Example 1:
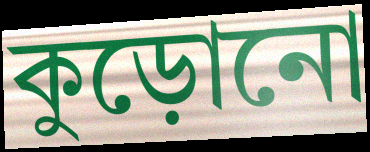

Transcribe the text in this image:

কুড়োনো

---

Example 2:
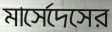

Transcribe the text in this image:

মার্সেদেসের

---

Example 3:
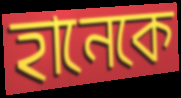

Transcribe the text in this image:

হানেকে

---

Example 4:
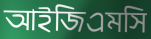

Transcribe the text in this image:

আইজিএমসি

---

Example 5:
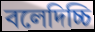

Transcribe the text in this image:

বলেদিচ্চি